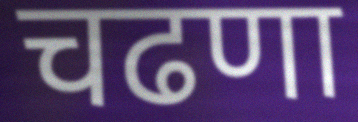
चढणा